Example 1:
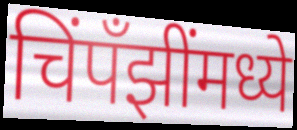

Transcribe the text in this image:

चिंपँझींमध्ये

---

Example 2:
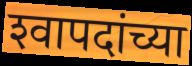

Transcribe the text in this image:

श्‍वापदांच्या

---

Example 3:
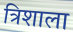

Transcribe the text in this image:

त्रिशाला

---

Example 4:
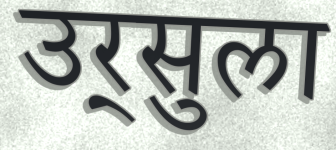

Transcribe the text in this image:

उर्सुला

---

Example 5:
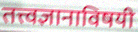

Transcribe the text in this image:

तत्त्वज्ञानाविषयी